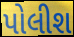
પોલીશ